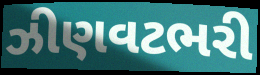
ઝીણવટભરી